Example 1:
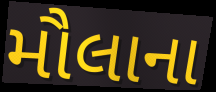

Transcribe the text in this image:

મૌલાના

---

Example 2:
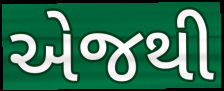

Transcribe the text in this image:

એજથી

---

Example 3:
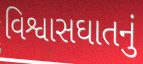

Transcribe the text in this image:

વિશ્વાસઘાતનું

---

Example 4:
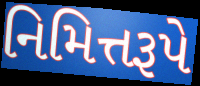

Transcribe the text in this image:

નિમિત્તરૂપે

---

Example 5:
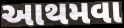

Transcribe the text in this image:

આથમવા